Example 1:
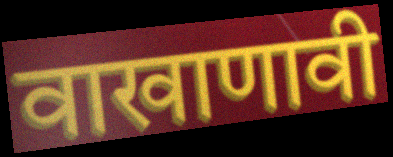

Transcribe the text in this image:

वाखाणावी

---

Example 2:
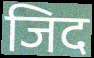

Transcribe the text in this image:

जिद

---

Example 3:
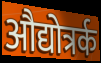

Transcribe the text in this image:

औद्योत्रर्क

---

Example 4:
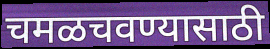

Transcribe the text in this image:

चमळचवण्यासाठी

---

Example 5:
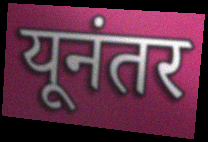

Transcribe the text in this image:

यूनंतर